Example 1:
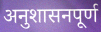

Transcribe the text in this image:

अनुशासनपूर्ण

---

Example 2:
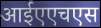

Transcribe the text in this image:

आईएएचएस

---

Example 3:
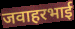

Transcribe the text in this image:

जवाहरभाई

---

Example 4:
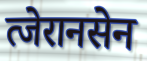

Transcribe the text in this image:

त्जेरानसेन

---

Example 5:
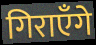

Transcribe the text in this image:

गिराएँगे